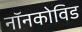
नॉनकोविड